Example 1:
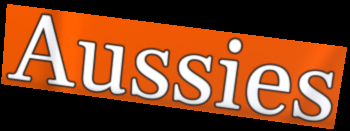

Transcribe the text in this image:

Aussies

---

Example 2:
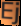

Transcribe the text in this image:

Ej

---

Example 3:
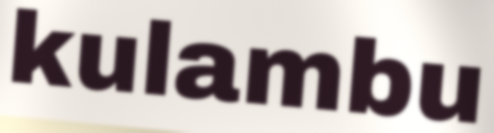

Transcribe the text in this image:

kulambu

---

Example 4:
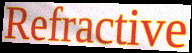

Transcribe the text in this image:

Refractive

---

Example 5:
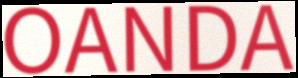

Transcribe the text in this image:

OANDA